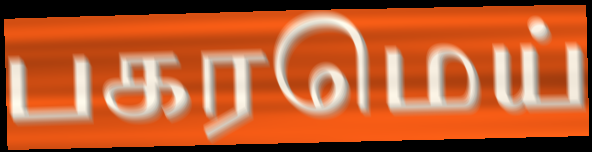
பகரமெய்